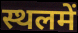
स्थलमें